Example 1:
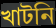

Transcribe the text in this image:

খাটনি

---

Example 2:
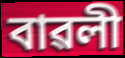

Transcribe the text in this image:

বাৱলী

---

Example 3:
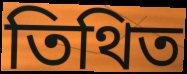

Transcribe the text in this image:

তিথিত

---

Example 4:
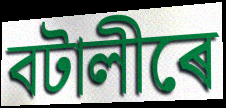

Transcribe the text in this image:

বটালীৰে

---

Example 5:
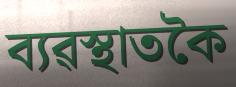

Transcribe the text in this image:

ব্যৱস্থাতকৈ